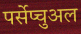
पर्सेप्चुअल